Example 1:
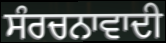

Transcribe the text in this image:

ਸੰਰਚਨਾਵਾਦੀ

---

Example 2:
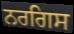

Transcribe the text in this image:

ਨਰਗਿਸ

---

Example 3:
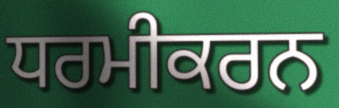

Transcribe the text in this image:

ਧਰਮੀਕਰਨ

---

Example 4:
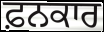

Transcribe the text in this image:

ਫ਼ਨਕਾਰ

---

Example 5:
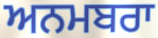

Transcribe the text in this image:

ਅਨਮਬਰਾ